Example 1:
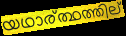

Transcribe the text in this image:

യഥാര്ത്ഥത്തില്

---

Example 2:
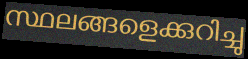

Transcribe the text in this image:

സ്ഥലങ്ങളെക്കുറിച്ചു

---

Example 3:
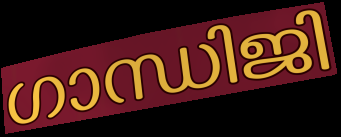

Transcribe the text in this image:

ഗാന്ധിജി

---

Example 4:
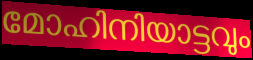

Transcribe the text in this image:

മോഹിനിയാട്ടവും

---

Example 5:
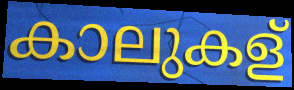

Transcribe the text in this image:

കാലുകള്